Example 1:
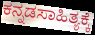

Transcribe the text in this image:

ಕನ್ನಡಸಾಹಿತ್ಯಕ್ಕೆ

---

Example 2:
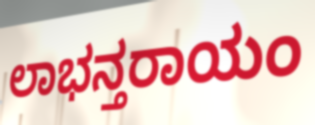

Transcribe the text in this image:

ಲಾಭನ್ತರಾಯಂ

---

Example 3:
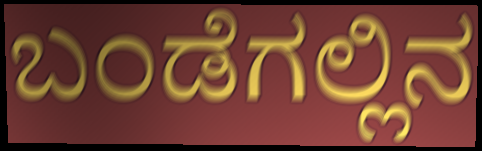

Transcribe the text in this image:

ಬಂಡೆಗಲ್ಲಿನ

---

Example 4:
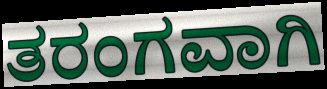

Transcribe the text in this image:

ತರಂಗವಾಗಿ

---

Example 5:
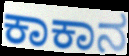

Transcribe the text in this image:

ಕಾಕಾನ